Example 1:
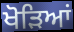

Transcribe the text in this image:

ਖੋੜਿਆਂ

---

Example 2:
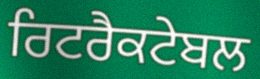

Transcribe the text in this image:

ਰਿਟਰੈਕਟੇਬਲ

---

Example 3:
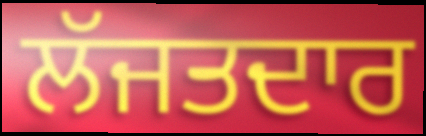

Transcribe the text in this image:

ਲੱਜਤਦਾਰ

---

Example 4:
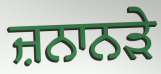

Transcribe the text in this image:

ਜ਼ਨਾਨੜੇ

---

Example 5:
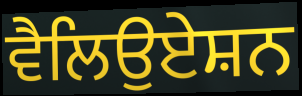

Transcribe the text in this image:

ਵੈਲਿਉਏਸ਼ਨ